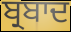
ਬ੍ਰਬਾਦ